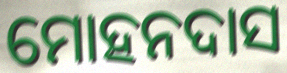
ମୋହନଦାସ